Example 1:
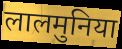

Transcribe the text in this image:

लालमुनिया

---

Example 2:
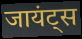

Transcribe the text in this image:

जायंट्स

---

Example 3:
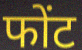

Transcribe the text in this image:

फोंट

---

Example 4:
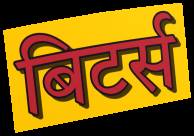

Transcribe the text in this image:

बिटर्स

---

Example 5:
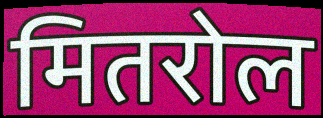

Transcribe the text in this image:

मितरोल